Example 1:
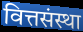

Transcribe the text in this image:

वित्तसंस्था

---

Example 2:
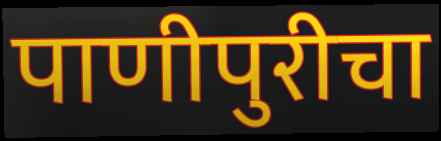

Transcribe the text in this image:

पाणीपुरीचा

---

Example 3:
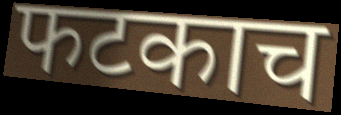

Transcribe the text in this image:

फटकाच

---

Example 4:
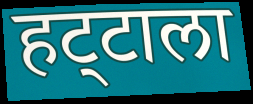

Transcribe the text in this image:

हट्‌टाला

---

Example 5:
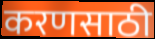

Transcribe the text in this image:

करणसाठी